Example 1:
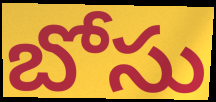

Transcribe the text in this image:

బోసు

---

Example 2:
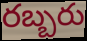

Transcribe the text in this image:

రబ్బరు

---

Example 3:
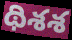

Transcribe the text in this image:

థిశశ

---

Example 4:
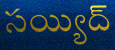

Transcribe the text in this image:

సయ్యిద్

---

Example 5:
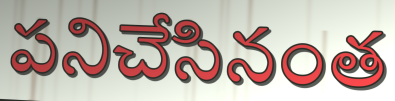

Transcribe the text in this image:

పనిచేసినంత